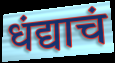
धंद्याचं